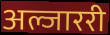
अल्जाररी